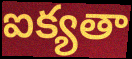
ఐక్యతా